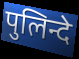
पुलिन्दे